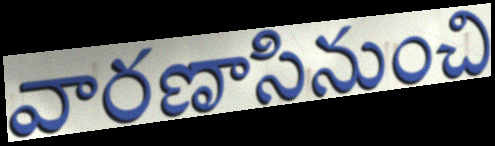
వారణాసినుంచి